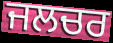
ਜਲਚਰ